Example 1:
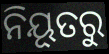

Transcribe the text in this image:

ନିୟୂତରୁ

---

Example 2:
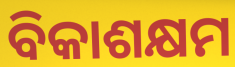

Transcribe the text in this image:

ବିକାଶକ୍ଷମ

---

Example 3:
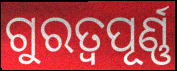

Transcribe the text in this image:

ଗୁରତ୍ୱପୂର୍ଣ୍ଣ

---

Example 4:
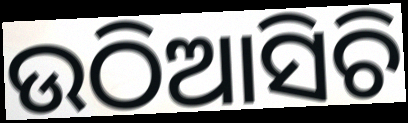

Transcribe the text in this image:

ଉଠିଆସିଚି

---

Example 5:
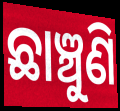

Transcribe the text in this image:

ଛାଞ୍ଚୁଣି